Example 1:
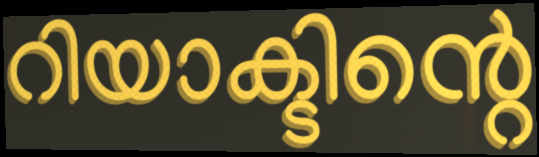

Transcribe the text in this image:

റിയാക്ടിന്റെ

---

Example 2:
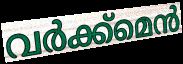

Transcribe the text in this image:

വർക്ക്മെൻ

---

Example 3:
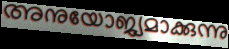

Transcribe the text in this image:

അനുയോജ്യമാക്കുന്നു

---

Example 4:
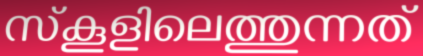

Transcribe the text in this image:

സ്‌കൂളിലെത്തുന്നത്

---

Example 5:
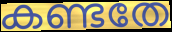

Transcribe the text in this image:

കണ്ടതേ